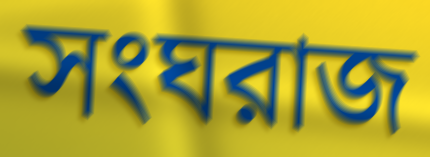
সংঘরাজ